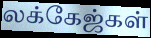
லக்கேஜ்கள்